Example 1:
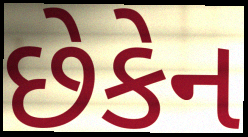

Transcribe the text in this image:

છેકેન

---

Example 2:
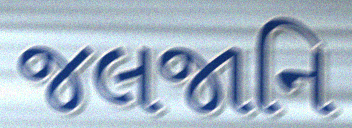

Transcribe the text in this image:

જલજાનિ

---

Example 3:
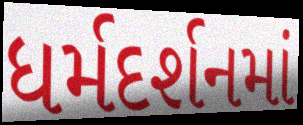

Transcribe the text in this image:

ધર્મદર્શનમાં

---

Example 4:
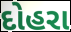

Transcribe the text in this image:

દોહરા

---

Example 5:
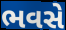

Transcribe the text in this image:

ભવસે